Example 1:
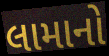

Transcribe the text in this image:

લામાનો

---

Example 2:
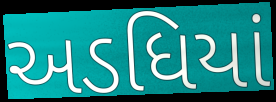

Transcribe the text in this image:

અડધિયાં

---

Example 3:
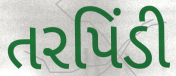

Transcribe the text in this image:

તરપિંડી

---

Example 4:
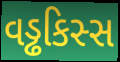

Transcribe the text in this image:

વડ્ઢકિસ્સ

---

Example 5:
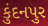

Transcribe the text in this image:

કુંદનપુર